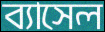
ব্যাসেল